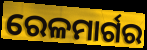
ରେଳମାର୍ଗର